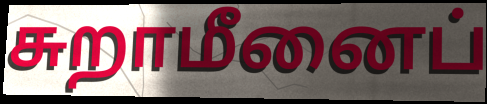
சுறாமீனைப்